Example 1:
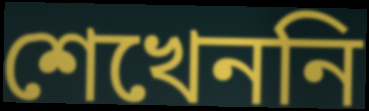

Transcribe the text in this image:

শেখেননি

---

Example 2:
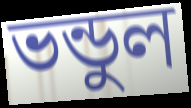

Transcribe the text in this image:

ভন্ডুল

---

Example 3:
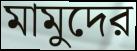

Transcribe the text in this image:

মামুদের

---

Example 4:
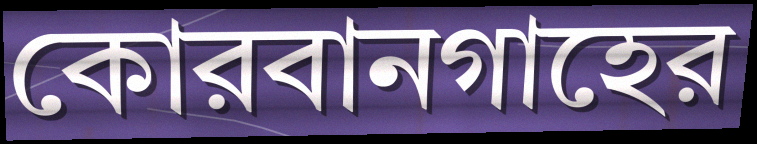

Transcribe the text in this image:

কোরবানগাহের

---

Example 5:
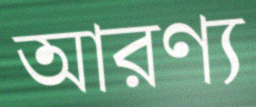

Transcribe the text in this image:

আরণ্য